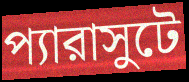
প্যারাসুটে